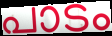
പാടം